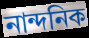
নান্দনিক